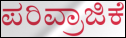
ಪರಿವ್ರಾಜಿಕೆ